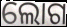
ଲୋଗ